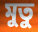
মুতু